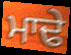
ਮਾਢੇ